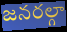
జనరల్గా